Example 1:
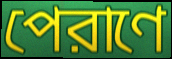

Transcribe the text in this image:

পেরাণে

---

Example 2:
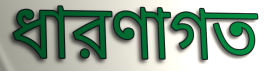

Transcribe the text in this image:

ধারণাগত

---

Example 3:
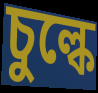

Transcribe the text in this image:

চুল্কে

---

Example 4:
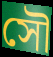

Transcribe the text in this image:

সৌ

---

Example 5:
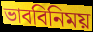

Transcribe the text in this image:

ভাববিনিময়